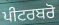
ਪੀਟਰਬਰੋ